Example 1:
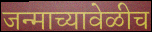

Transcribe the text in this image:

जन्माच्यावेळीच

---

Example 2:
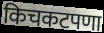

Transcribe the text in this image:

किचकटपणा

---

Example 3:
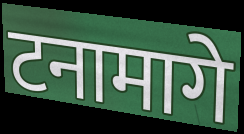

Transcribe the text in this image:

टनामागे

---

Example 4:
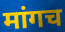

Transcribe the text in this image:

मांगच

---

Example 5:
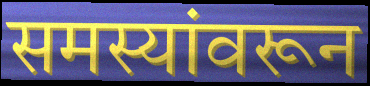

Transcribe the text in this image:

समस्यांवरून